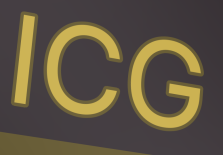
ICG